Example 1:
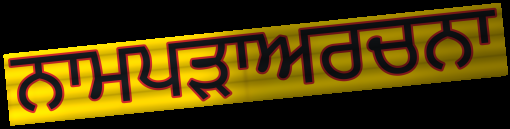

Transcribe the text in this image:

ਨਾਮਪੜਾਅਰਚਨਾ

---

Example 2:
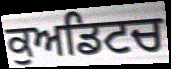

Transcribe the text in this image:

ਕੁਅਡਿਟਚ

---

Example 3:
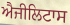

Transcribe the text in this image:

ਐਜੀਲਿਟਾਸ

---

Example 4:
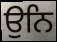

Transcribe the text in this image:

ਉਨਿ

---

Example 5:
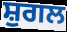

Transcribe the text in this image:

ਸ਼ੁਗਲ